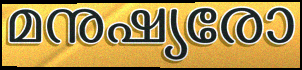
മനുഷ്യരോ